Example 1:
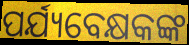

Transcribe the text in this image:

ପର୍ଯ୍ୟବେକ୍ଷକଙ୍କ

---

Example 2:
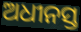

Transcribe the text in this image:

ଅଧୀନସ୍ତ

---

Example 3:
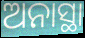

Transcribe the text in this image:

ଅନାସ୍ଥା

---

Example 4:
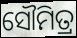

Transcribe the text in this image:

ସୌମିତ୍ର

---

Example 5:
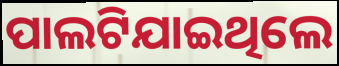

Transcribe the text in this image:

ପାଲଟିଯାଇଥିଲେ